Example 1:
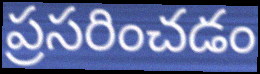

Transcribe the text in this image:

ప్రసరించడం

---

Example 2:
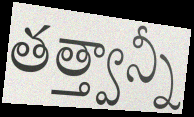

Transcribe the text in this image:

తత్త్వాన్నీ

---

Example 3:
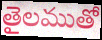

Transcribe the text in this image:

తైలముతో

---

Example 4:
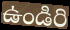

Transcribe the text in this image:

ఉండిరి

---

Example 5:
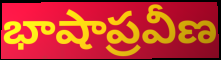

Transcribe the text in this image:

భాషాప్రవీణ